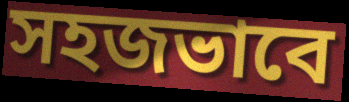
সহজভাবে